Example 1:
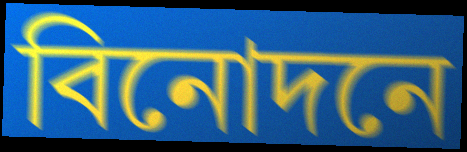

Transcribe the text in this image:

বিনোদনে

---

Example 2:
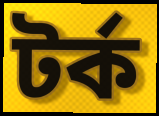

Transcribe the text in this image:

টর্ক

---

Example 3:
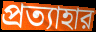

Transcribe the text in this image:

প্রত্যাহার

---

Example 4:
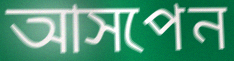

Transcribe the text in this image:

আসপেন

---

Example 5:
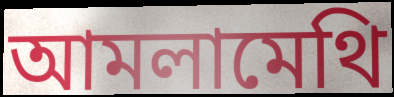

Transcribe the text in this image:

আমলামেথি